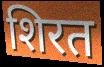
शिरत